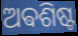
ଅଵଶିଷ୍ଟ